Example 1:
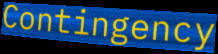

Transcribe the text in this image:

Contingency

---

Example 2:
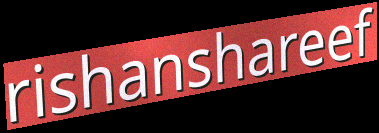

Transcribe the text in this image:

rishanshareef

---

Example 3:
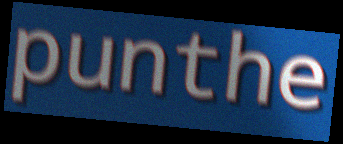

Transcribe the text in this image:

punthe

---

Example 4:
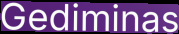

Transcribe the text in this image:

Gediminas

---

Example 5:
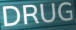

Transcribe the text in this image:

DRUG